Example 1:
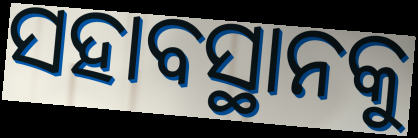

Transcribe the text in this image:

ସହାବସ୍ଥାନକୁ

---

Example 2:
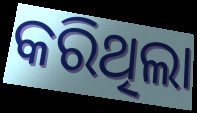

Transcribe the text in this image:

କରିଥିଲା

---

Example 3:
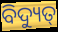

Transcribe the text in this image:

ବିଦ୍ୟୁତ୍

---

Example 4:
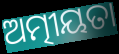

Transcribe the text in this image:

ଅତ୍ମୀୟତା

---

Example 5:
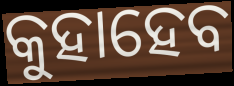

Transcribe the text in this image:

କୁହାହେବ